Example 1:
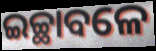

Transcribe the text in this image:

ଇଚ୍ଛାବଳେ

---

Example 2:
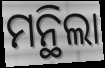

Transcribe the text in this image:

ମନ୍ଥିଲା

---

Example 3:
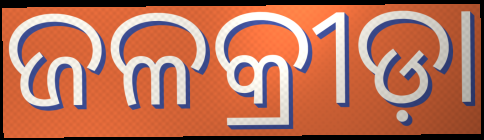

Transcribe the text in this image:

ଜଳକ୍ରୀଡ଼ା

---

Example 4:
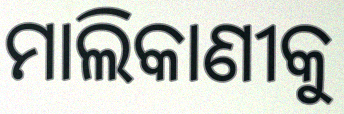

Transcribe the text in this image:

ମାଲିକାଣୀକୁ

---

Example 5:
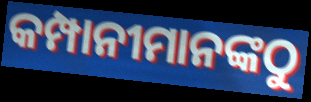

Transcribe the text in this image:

କମ୍ପାନୀମାନଙ୍କଠୁ